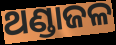
ଥଣ୍ଡାଜଳ